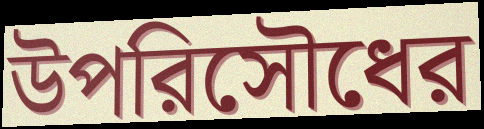
উপরিসৌধের